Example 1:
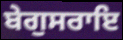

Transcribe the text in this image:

ਬੇਗੁਸਰਾਇ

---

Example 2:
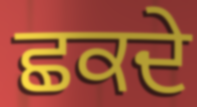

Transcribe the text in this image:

ਛਕਦੇ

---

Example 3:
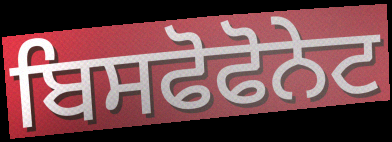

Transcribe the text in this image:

ਬਿਸਫੋਫੋਨੇਟ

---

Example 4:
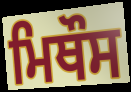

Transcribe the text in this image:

ਮਿਥੌਸ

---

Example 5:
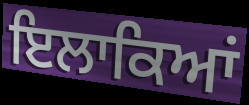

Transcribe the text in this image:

ਇਲਾਕਿਆਂ